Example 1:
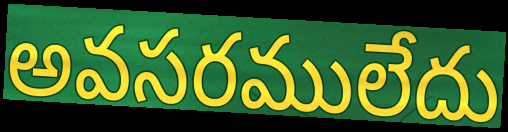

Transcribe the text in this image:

అవసరములేదు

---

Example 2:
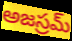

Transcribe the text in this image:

అజస్రమ్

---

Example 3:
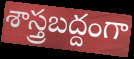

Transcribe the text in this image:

శాస్త్రబద్దంగా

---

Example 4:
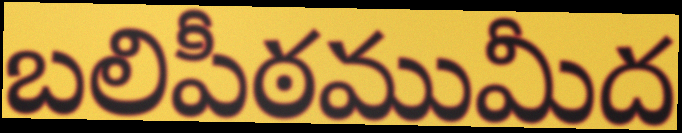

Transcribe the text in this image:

బలిపీఠముమీద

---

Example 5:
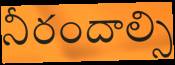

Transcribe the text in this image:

నీరందాల్సి